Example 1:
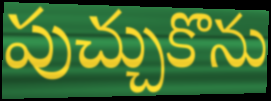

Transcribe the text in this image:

పుచ్చుకొను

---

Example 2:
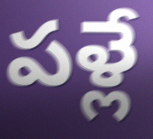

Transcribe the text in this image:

పళ్లే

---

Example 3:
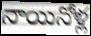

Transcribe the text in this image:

నాయినోళ్ల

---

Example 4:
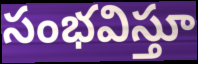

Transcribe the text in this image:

సంభవిస్తూ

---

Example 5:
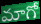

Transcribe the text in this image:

మాగో